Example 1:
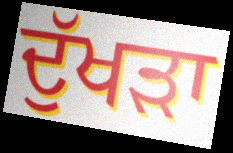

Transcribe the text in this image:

ਦੁੱਖਡ਼ਾ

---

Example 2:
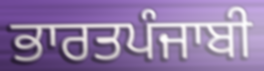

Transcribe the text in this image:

ਭਾਰਤਪੰਜਾਬੀ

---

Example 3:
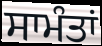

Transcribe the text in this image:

ਸਾਮੰਤਾਂ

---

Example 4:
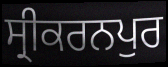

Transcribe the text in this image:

ਸ੍ਰੀਕਰਨਪੁਰ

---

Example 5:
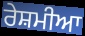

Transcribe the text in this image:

ਰੇਸ਼ਮੀਆ